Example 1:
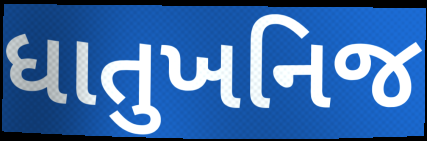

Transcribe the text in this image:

ધાતુખનિજ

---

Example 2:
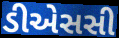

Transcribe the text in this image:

ડીએસસી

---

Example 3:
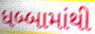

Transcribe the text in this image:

ધબ્બામાંથી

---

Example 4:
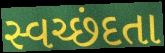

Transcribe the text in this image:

સ્વચ્છંદતા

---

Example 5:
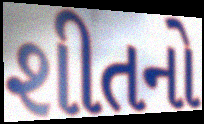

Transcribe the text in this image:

શીતનો